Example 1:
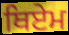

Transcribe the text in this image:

ਥਿਏਮ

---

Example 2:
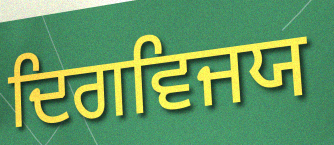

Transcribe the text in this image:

ਦਿਗਵਿਜਯ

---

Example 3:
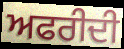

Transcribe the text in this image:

ਅਫਰੀਦੀ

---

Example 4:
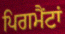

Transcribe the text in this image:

ਪਿਗਮੈਂਟਾਂ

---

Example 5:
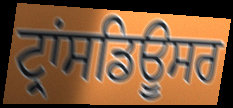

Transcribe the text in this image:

ਟ੍ਰਾਂਸਡਿਊਸਰ